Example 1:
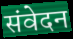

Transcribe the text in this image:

संवेदन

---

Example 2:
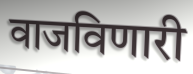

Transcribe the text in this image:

वाजविणारी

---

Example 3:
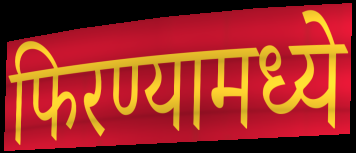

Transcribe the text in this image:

फिरण्यामध्ये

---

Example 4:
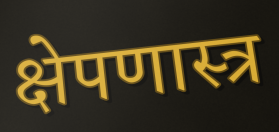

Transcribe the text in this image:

क्षेपणास्त्र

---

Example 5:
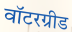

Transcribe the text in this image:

वॉटरग्रीड